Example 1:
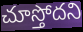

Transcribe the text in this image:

చూస్తోదని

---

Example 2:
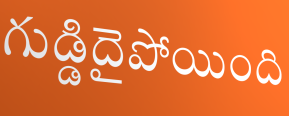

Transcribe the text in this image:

గుడ్డిదైపోయింది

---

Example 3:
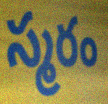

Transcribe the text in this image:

స్మరం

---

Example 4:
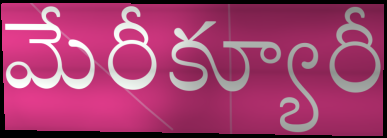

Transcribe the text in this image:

మేరీక్యూరీ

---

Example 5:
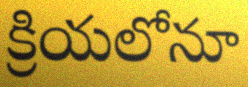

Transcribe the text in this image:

క్రియలోనూ